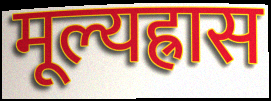
मूल्यह्रास